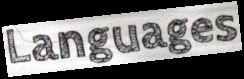
Languages